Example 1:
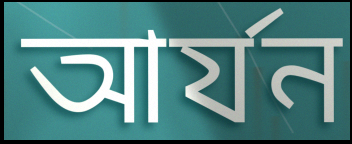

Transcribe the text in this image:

আর্যন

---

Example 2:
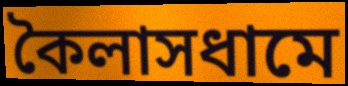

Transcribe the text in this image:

কৈলাসধামে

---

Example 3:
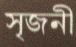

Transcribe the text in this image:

সৃজনী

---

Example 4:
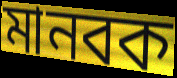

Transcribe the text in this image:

মানবক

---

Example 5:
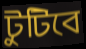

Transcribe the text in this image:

টুটিবে